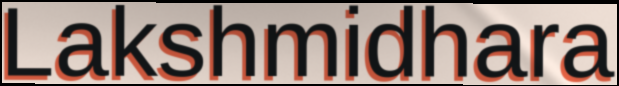
Lakshmidhara